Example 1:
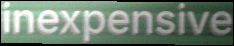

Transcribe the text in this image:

inexpensive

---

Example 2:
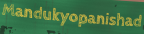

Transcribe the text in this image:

Mandukyopanishad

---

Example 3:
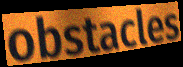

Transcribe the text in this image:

obstacles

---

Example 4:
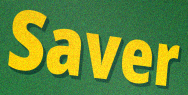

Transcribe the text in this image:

Saver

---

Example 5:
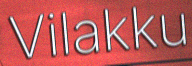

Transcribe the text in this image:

Vilakku